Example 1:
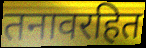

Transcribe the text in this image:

तनावरहित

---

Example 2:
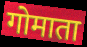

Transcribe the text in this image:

गोमाता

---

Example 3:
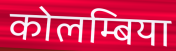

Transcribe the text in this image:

कोलम्बिया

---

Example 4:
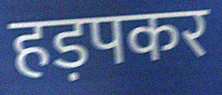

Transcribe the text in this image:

हड़पकर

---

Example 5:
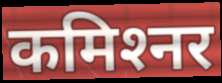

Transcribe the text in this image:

कमिश्‍नर